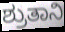
ಶ್ರುತಾನಿ